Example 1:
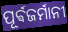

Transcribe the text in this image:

ପୂର୍ଵଜର୍ମାନୀ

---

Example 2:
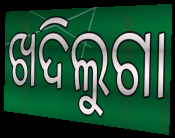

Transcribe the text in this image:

ଖଦିଲୁଗା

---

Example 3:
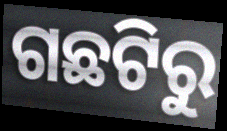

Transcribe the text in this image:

ଗଛଟିରୁ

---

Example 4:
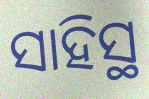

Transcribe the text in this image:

ସାହିସ୍ଥ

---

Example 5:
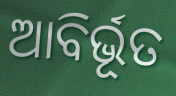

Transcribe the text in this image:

ଆବିର୍ଭୂତ